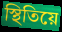
স্থিতিয়ে